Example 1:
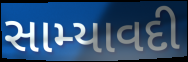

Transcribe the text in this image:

સામ્યાવદી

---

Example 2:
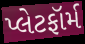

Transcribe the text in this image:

પ્લેટફૉર્મ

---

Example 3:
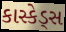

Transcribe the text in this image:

કાસ્કેડ્સ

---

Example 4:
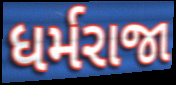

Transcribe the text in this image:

ધર્મરાજા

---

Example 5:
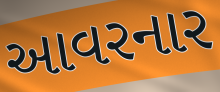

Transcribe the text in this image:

આવરનાર